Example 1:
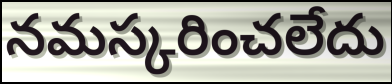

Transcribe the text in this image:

నమస్కరించలేదు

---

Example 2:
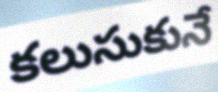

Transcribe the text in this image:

కలుసుకునే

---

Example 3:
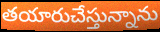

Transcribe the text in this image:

తయారుచేస్తున్నాను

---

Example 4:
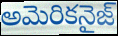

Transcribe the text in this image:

అమెరికనైజ్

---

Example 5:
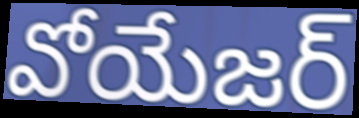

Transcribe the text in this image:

వోయేజర్